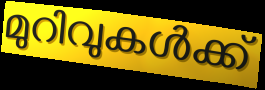
മുറിവുകൾക്ക്